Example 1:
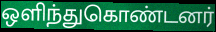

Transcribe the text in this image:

ஒளிந்துகொண்டனர்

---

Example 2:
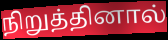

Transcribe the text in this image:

நிறுத்தினால்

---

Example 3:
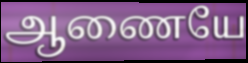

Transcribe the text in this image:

ஆணையே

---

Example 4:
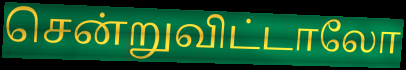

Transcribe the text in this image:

சென்றுவிட்டாலோ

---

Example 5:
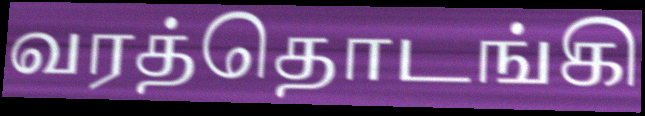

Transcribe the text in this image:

வரத்தொடங்கி